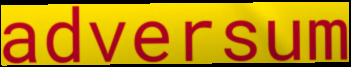
adversum